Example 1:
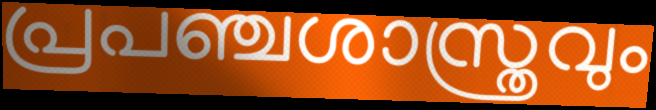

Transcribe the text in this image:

പ്രപഞ്ചശാസ്ത്രവും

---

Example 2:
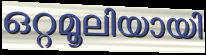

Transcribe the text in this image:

ഒറ്റമൂലിയായി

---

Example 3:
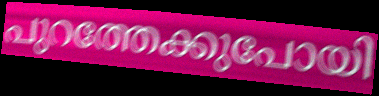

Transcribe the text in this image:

പുറത്തേക്കുപോയി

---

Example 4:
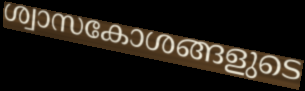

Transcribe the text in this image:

ശ്വാസകോശങ്ങളുടെ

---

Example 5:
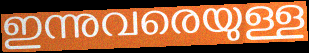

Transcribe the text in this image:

ഇന്നുവരെയുള്ള